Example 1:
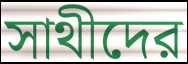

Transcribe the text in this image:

সাথীদের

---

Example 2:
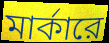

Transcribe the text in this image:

মার্কারে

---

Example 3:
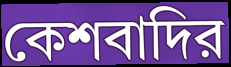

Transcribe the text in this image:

কেশবাদির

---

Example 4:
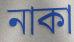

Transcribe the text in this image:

নাকা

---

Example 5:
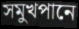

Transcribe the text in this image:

সমুখপানে